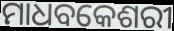
ମାଧବକେଶରୀ